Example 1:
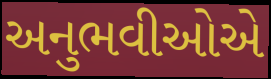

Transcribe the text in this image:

અનુભવીઓએ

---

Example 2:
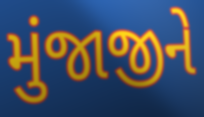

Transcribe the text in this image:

મુંજાજીને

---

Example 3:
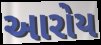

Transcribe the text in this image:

આરોય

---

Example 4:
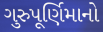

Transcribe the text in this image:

ગુરુપૂર્ણિમાનો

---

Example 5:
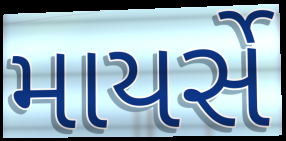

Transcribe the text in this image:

માયર્સે